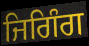
ਜਿਗਿੰਗ